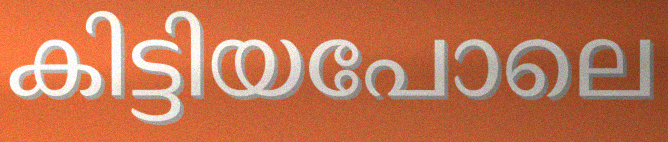
കിട്ടിയപോലെ